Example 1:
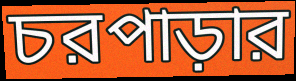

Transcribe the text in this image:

চরপাড়ার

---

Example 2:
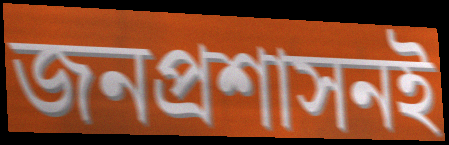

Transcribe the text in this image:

জনপ্রশাসনই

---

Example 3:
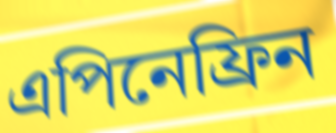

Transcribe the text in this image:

এপিনেফ্রিন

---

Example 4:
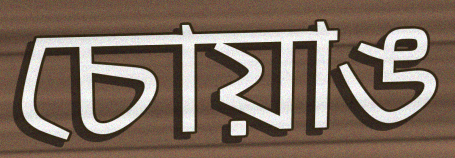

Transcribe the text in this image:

চোয়াঙ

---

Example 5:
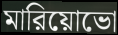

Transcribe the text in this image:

মারিয়োভো